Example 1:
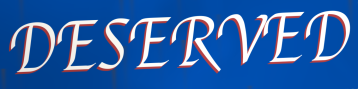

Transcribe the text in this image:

DESERVED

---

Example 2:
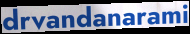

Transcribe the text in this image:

drvandanarami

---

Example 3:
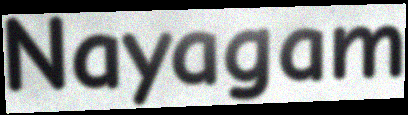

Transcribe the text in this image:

Nayagam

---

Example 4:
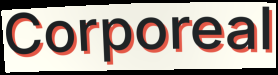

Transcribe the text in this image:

Corporeal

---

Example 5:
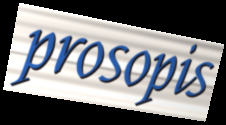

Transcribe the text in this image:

prosopis